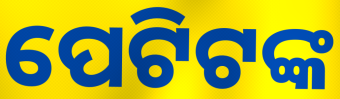
ପେଟିଟଙ୍କ